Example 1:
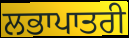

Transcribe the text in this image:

ਲਭਾਪਾਤਰੀ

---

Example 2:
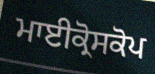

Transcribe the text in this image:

ਮਾਈਕ੍ਰੋਸਕੋਪ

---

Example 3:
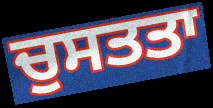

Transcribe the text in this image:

ਚੁਸਤਤਾ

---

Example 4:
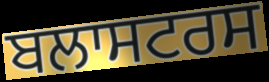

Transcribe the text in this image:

ਬਲਾਸਟਰਸ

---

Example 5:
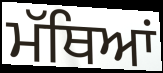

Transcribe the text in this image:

ਮੱਥਿਆਂ